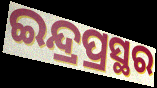
ଇନ୍ଦ୍ରପ୍ରସ୍ଥର